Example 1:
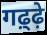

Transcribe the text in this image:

गढ़्ढ़े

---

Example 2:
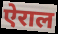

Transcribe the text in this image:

ऐराल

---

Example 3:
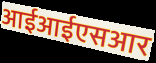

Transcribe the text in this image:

आईआईएसआर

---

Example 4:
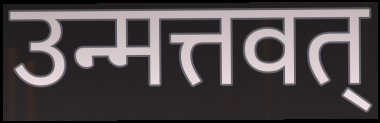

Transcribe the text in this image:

उन्मत्तवत्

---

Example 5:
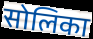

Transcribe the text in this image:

सोलिका